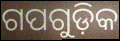
ଗପଗୁଡ଼ିକ